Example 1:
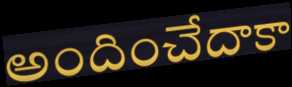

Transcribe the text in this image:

అందించేదాకా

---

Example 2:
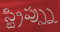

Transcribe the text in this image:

స్ట్రిప్స్ను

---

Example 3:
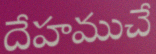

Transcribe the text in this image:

దేహముచే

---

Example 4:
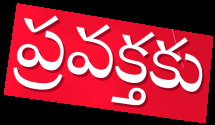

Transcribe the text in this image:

ప్రవక్తకు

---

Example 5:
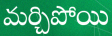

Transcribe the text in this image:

మర్చిపోయి